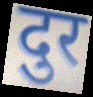
दुर